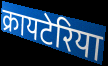
क्रायटेरिया